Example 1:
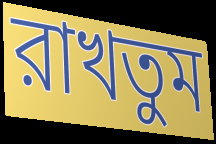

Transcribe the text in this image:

রাখতুম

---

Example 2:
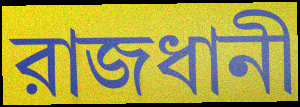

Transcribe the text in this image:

রাজধানী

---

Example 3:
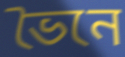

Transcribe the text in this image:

ভৈনে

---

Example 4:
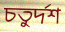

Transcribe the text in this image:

চতুর্দশ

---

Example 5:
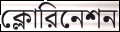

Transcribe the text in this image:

ক্লোরিনেশন